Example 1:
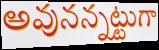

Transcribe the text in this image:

అవునన్నట్టుగా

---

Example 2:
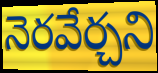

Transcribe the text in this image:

నెరవేర్చని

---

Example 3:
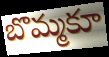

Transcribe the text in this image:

బొమ్మకూ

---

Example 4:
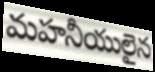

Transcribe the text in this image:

మహనీయులైన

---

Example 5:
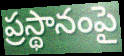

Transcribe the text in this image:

ప్రస్థానంపై